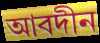
আবদীন